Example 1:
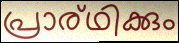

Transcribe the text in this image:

പ്രാര്ഥിക്കും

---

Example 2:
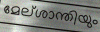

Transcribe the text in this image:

മേല്ശാന്തിയും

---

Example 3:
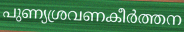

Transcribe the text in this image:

പുണ്യശ്രവണകീർത്തന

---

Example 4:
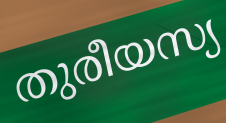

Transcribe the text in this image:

തുരീയസ്യ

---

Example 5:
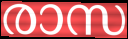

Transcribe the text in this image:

രാസ